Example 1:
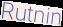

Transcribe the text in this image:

Rutnin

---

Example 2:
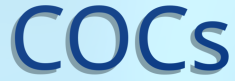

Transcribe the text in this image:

COCs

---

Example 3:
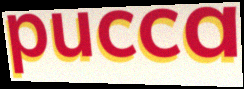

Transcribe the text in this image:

pucca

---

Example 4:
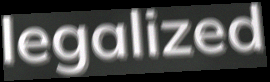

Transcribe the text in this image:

legalized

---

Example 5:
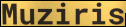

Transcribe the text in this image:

Muziris